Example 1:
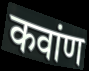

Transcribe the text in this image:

कवांण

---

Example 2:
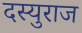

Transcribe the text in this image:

दस्युराज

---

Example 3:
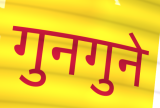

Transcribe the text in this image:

गुनगुने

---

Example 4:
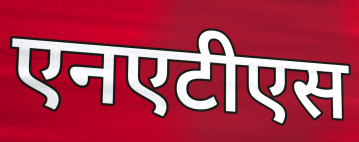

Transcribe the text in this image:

एनएटीएस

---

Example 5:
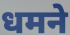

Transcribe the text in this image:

धमने